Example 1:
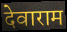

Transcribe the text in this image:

देवाराम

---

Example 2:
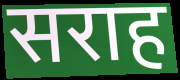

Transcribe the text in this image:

सराह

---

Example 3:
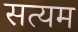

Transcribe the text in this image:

सत्यम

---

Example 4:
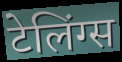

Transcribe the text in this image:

टेलिंग्स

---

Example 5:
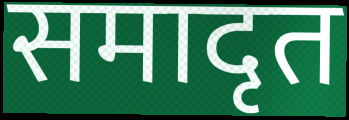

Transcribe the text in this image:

समादृत